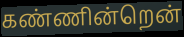
கண்ணின்றென்